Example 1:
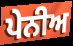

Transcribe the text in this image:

ਪੇਨੀਅ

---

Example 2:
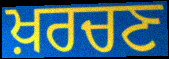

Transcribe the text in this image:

ਖ਼ਰਚਣ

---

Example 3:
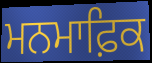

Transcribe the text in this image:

ਮਨਮਾਫ਼ਿਕ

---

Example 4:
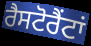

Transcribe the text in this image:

ਰੈਸਟੋਰੈਂਟਾਂ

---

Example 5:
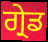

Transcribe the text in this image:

ਗ੍ਰੇਡ